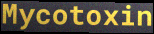
Mycotoxin